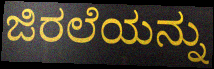
ಜಿರಲೆಯನ್ನು